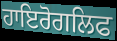
ਹਾਇਰੋਗਲਿਫ